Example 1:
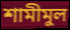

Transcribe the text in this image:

শামীমুল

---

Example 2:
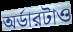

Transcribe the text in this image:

অর্ডারটাও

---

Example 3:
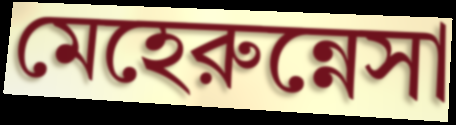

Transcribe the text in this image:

মেহেরুন্নেসা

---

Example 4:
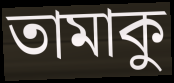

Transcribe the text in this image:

তামাকু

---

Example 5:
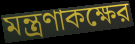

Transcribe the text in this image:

মন্ত্রণাকক্ষের